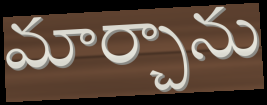
మార్చాను